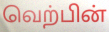
வெற்பின்